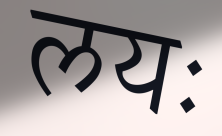
लयः